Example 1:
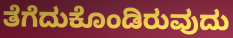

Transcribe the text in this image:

ತೆಗೆದುಕೊಂಡಿರುವುದು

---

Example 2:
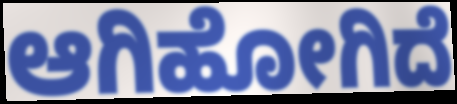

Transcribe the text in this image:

ಆಗಿಹೋಗಿದೆ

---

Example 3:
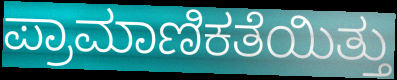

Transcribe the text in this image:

ಪ್ರಾಮಾಣಿಕತೆಯಿತ್ತು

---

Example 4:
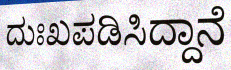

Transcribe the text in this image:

ದುಃಖಪಡಿಸಿದ್ದಾನೆ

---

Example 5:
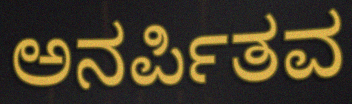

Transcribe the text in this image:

ಅನರ್ಪಿತವ